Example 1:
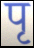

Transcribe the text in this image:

पृ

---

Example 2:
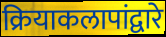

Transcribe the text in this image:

क्रियाकलापांद्वारे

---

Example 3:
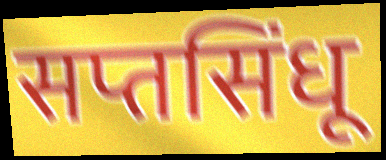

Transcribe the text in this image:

सप्तसिंधू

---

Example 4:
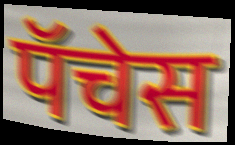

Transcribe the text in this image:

पॅचेस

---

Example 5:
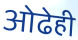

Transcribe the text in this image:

ओढेही